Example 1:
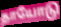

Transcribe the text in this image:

தாயோடு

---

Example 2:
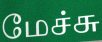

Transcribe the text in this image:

மேச்சு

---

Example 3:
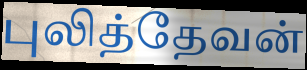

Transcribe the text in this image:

புலித்தேவன்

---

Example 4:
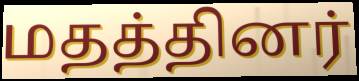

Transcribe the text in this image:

மதத்தினர்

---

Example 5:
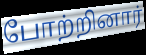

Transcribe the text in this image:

போற்றினார்